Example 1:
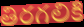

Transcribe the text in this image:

తిరగలికి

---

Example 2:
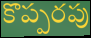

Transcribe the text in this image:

కొప్పరపు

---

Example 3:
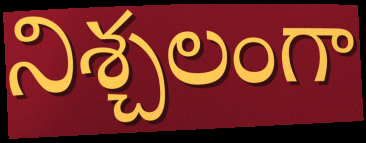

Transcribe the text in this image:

నిశ్చలంగా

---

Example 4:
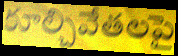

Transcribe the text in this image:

కూల్చివేతలపై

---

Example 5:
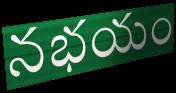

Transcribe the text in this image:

నభయం